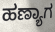
ಹಣ್ಯಾಗ